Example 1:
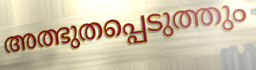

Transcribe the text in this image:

അത്ഭുതപ്പെടുത്തും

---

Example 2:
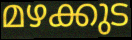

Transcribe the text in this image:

മഴക്കുട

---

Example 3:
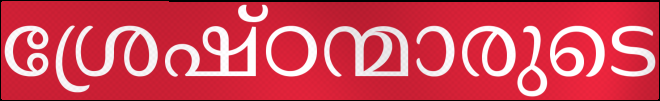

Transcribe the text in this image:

ശ്രേഷ്ഠന്മാരുടെ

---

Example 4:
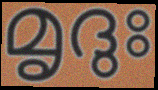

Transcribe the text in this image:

മൃദുഃ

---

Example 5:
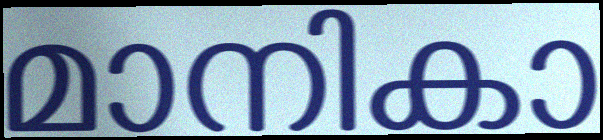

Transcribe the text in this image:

മാനികാ